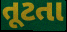
તૂટતા